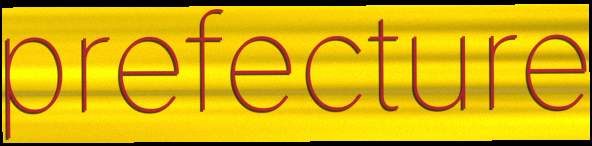
prefecture